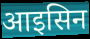
आइसिन